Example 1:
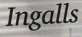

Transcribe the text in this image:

Ingalls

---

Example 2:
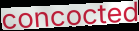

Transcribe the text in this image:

concocted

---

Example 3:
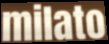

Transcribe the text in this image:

milato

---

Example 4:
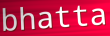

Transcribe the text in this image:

bhatta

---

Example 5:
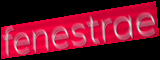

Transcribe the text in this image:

fenestrae